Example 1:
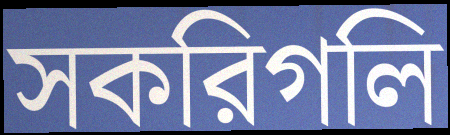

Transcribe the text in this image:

সকরিগলি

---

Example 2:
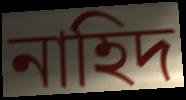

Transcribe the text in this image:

নাহিদ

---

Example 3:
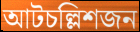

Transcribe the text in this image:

আটচল্লিশজন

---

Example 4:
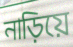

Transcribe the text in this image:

নাড়িয়ে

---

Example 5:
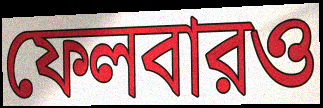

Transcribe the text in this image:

ফেলবারও